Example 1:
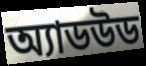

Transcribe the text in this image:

অ্যাডউড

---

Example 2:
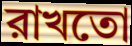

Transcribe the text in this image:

রাখতো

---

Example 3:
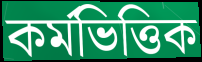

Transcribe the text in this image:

কর্মভিত্তিক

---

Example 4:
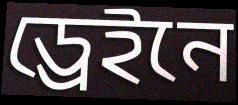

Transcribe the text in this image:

ড্রেইনে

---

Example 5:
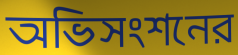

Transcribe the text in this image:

অভিসংশনের